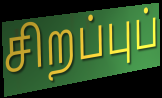
சிறப்புப்